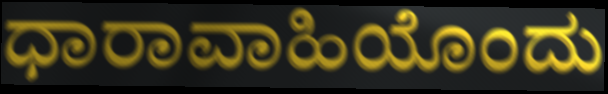
ಧಾರಾವಾಹಿಯೊಂದು